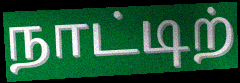
நாட்டிற்